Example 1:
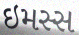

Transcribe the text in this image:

ઇમસ્સ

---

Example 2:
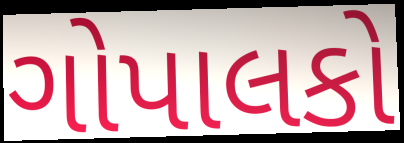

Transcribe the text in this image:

ગોપાલકો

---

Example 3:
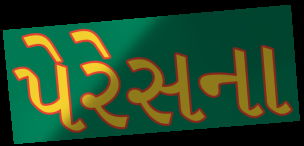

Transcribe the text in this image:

પેરેસના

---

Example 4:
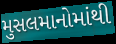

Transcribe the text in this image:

મુસલમાનોમાંથી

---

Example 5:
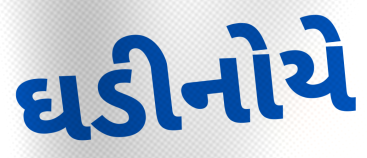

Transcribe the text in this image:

ઘડીનોયે